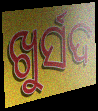
ଖୁର୍ସଦ